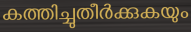
കത്തിച്ചുതീർക്കുകയും